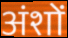
अंशों